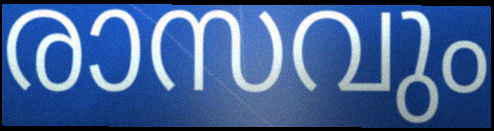
രാസവും